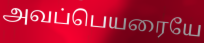
அவப்பெயரையே